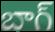
బాగ్